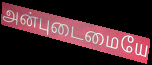
அன்புடைமையே